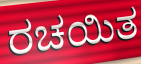
ರಚಯಿತ